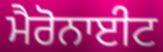
ਮੈਰੋਨਾਈਟ